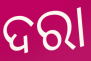
ଦରା